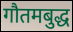
गौतमबुद्ध